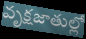
వృక్షజాతుల్లో